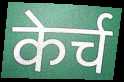
केर्च